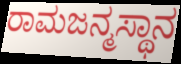
ರಾಮಜನ್ಮಸ್ಥಾನ